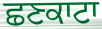
ਛਣਕਾਟਾ